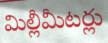
మిల్లీమీటర్లు